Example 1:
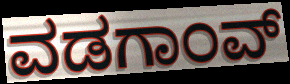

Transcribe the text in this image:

ವಡಗಾಂವ್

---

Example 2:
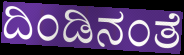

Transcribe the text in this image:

ದಿಂಡಿನಂತೆ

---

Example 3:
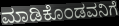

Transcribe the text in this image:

ಮಾಡಿಕೊಂಡವನಿಗೆ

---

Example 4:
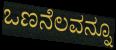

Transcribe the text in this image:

ಒಣನೆಲವನ್ನೂ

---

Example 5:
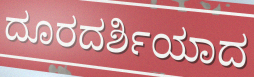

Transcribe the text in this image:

ದೂರದರ್ಶಿಯಾದ